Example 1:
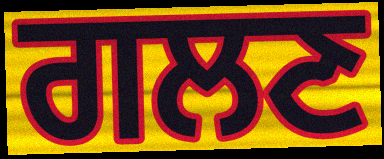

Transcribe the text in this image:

ਗਲਣ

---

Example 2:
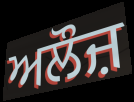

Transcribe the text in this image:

ਅਲੌਜ਼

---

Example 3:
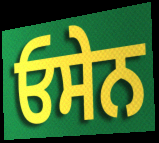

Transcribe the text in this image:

ਓਸੇਨ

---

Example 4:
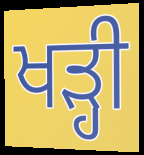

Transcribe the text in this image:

ਖੜ੍ਹੀ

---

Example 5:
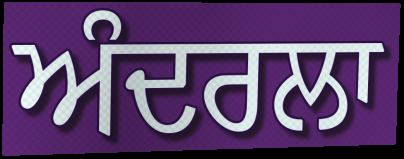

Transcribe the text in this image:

ਅੰਦਰਲਾ